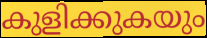
കുളിക്കുകയും